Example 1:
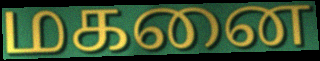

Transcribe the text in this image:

மகனை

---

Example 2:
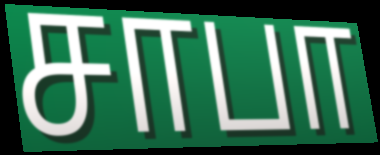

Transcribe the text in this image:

சாபா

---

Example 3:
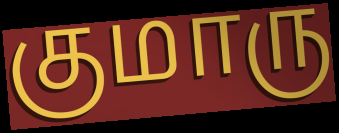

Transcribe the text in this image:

குமாரு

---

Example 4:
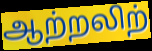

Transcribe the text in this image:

ஆற்றலிற்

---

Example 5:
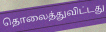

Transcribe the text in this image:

தொலைத்துவிட்டது